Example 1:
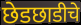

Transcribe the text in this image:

छेडछाडीचे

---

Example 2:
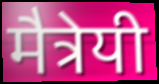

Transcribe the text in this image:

मैत्रेयी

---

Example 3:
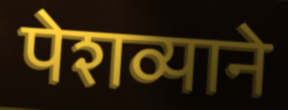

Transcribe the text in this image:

पेशव्याने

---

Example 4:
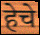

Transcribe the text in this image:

हेचे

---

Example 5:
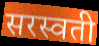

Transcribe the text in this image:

सरस्वती